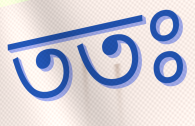
ততঃ